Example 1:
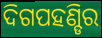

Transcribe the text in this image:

ଦିଗପହଣ୍ଡିର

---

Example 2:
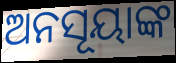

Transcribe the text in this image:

ଅନସୂୟାଙ୍କ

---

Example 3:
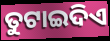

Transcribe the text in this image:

ତୁଟାଇଦିଏ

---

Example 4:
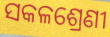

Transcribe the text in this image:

ସକଳଶ୍ରେଣୀ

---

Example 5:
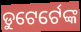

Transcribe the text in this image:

ଡୁଟେର୍ଟେଙ୍କ